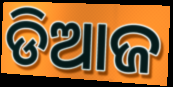
ଡିଆଜ